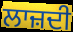
ਲਾਜ਼ਦੀ